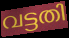
വട്ടതി